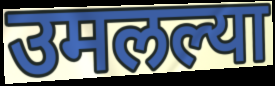
उमलल्या